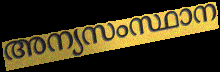
അന്യസംസ്ഥാന